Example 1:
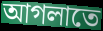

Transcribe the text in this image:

আগলাতে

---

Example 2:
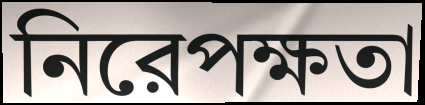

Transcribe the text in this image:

নিরেপক্ষতা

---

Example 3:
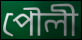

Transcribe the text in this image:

পৌলী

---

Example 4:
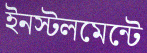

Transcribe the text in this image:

ইনস্টলমেন্টে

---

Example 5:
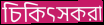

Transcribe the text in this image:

চিকিৎসকরা